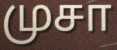
முசா